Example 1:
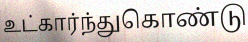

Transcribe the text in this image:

உட்கார்ந்துகொண்டு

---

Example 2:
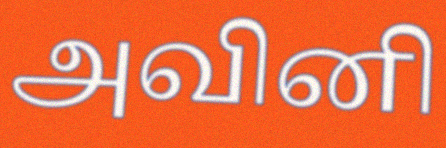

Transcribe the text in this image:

அவினி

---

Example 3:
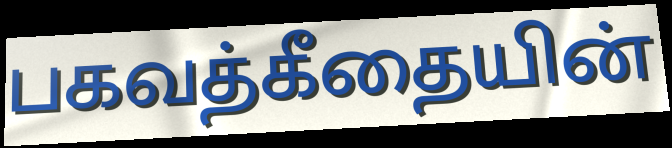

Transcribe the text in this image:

பகவத்கீதையின்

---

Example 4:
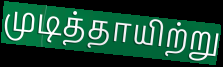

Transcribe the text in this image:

முடித்தாயிற்று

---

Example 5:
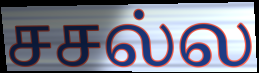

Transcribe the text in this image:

சசல்ல